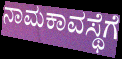
ನಾಮಕಾವಸ್ಥೆಗೆ